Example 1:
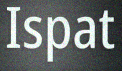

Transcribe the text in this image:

Ispat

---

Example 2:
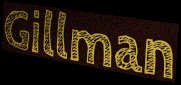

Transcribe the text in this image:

Gillman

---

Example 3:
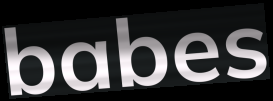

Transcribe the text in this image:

babes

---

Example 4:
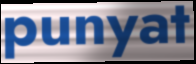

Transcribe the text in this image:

punyat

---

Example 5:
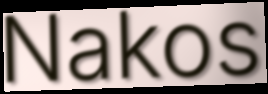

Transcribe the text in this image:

Nakos